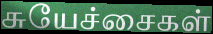
சுயேச்சைகள்